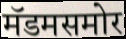
मॅडमसमोर